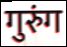
गुरुंग